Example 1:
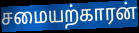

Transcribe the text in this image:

சமையற்காரன்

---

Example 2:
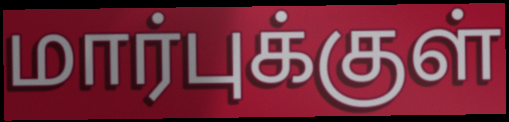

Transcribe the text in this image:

மார்புக்குள்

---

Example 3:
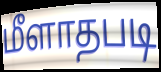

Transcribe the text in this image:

மீளாதபடி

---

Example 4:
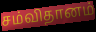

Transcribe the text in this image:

சம்விதானம்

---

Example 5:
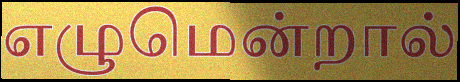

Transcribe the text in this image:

எழுமென்றால்